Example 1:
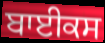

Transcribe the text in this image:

ਬਾਈਕਸ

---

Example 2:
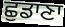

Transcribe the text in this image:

ਛੁਡਾਣਾ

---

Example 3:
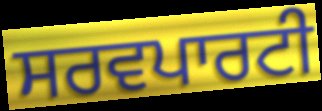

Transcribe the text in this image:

ਸਰਵਪਾਰਟੀ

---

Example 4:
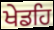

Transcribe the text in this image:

ਖੇਡਹਿ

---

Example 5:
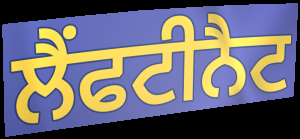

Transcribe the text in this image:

ਲੈਂਫਟੀਨੈਟ